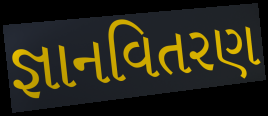
જ્ઞાનવિતરણ